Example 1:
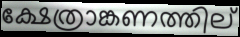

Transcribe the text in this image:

ക്ഷേത്രാങ്കണത്തില്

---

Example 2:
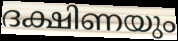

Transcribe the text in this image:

ദക്ഷിണയും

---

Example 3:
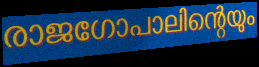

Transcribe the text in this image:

രാജഗോപാലിന്റെയും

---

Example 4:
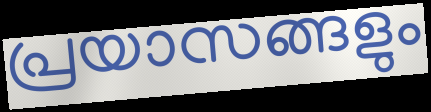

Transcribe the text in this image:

പ്രയാസങ്ങളും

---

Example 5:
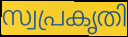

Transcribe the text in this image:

സ്വപ്രകൃതി